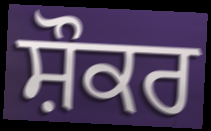
ਸ਼ੌਕਰ